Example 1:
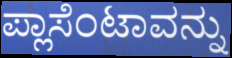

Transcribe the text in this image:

ಪ್ಲಾಸೆಂಟಾವನ್ನು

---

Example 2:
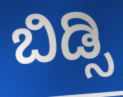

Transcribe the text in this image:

ಬಿಡ್ಸಿ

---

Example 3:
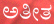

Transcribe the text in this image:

ಅತೀತ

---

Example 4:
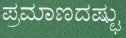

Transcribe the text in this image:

ಪ್ರಮಾಣದಷ್ಟು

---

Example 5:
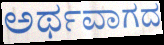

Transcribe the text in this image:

ಅರ್ಥವಾಗದ